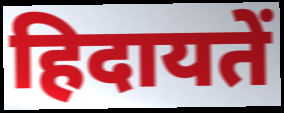
हिदायतें